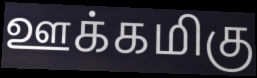
ஊக்கமிகு